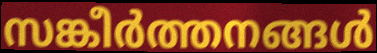
സങ്കീർത്തനങ്ങൾ